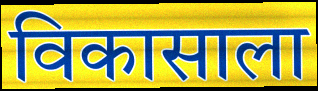
विकासाला